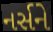
નર્સને